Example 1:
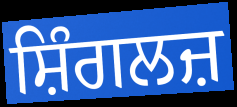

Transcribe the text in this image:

ਸ਼ਿੰਗਲਜ਼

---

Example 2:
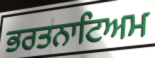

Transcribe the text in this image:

ਭਰਤਨਾਟਿਅਮ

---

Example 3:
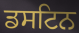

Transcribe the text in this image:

ਡਸਟਿਨ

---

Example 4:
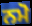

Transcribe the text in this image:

ਨਮੋ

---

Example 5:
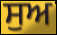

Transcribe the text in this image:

ਸੁਅ